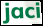
jaci